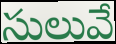
సులువే